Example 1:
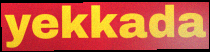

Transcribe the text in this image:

yekkada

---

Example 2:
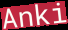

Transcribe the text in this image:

Anki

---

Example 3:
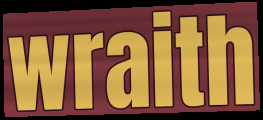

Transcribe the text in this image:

wraith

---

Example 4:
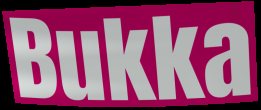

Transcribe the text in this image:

Bukka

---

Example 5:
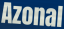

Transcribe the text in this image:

Azonal